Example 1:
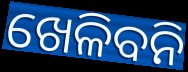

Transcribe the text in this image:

ଖେଳିବନି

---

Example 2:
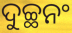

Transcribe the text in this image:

ଦୁଚ୍ଛନଂ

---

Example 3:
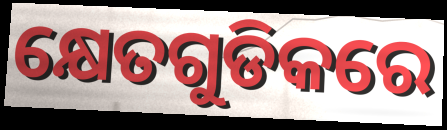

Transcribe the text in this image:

କ୍ଷେତଗୁଡିକରେ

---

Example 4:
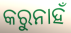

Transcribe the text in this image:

କରୁନାହଁ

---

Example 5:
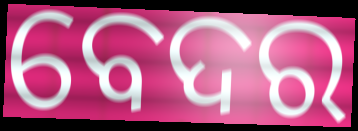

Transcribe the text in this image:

ବେଦର